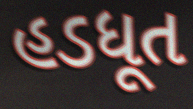
હડધૂત